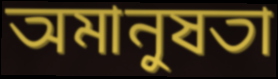
অমানুষতা